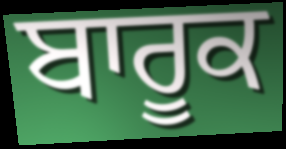
ਬਾਰੂਕ